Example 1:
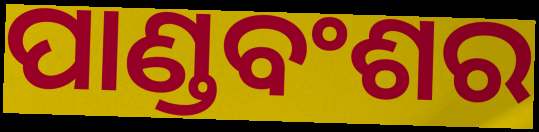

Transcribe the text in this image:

ପାଣ୍ଡବଂଶର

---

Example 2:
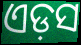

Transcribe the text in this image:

ଏଡ଼ସ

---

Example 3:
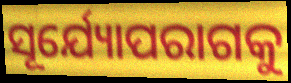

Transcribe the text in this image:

ସୂର୍ଯ୍ୟୋପରାଗକୁ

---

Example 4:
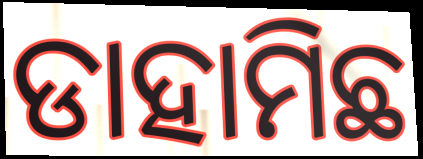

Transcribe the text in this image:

ଡାହାମିଛ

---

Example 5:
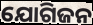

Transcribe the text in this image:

ଯୋଗିଜନ